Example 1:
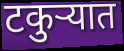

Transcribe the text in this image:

टकुऱ्यात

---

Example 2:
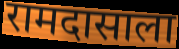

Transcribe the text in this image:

रामदासाला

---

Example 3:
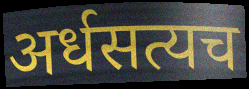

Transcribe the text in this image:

अर्धसत्यच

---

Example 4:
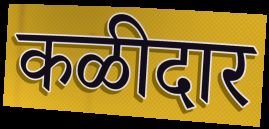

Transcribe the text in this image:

कळीदार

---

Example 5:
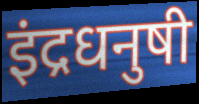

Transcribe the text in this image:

इंद्रधनुषी